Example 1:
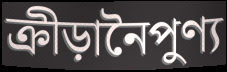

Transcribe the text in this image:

ক্রীড়ানৈপুণ্য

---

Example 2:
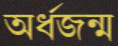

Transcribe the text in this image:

অর্ধজন্ম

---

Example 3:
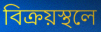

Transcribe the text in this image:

বিক্রয়স্থলে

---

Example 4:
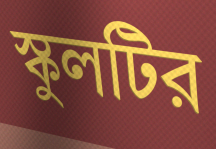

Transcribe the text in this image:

স্কুলটির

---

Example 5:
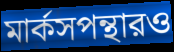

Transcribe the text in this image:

মার্কসপন্থারও